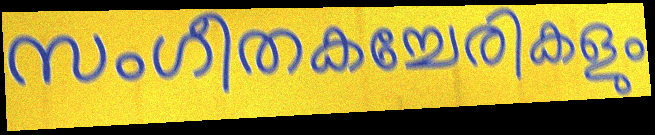
സംഗീതകച്ചേരികളും